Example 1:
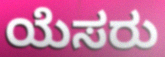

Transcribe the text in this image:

ಯೆಸರು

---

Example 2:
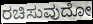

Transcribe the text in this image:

ರಚಿಸುವುದೋ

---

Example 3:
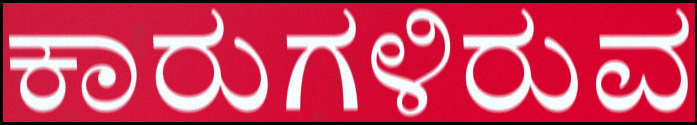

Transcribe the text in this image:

ಕಾರುಗಳಿರುವ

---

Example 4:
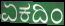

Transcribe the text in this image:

ಏಕದಿಂ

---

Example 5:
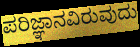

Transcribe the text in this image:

ಪರಿಜ್ಞಾನವಿರುವುದು